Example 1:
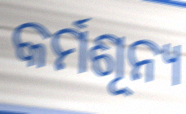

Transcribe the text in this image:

କର୍ମଶୂନ୍ୟ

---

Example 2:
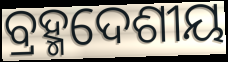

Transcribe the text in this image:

ବ୍ରହ୍ମଦେଶୀୟ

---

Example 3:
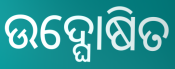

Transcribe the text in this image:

ଉଦ୍ଘୋଷିତ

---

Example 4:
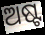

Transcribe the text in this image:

ଅଷ୍ଟ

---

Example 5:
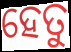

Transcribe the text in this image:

ହେତୁ